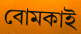
বোমকাই